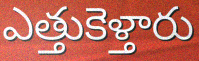
ఎత్తుకెళ్తారు